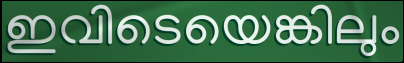
ഇവിടെയെങ്കിലും